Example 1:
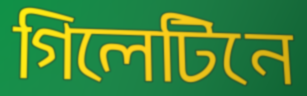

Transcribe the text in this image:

গিলেটিনে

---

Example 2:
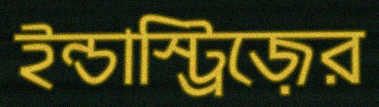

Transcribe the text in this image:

ইন্ডাস্ট্রিজ়ের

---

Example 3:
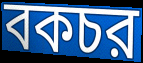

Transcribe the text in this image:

বকচর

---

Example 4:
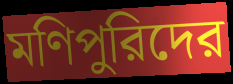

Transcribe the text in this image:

মণিপুরিদের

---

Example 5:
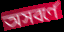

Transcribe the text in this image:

অসবর্ণে